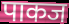
पाकज